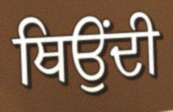
ਥਿਉਂਦੀ